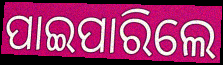
ପାଇପାରିଲେ